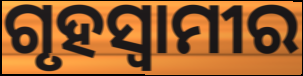
ଗୃହସ୍ୱାମୀର